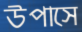
উপাসে